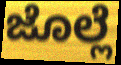
ಜೊಲ್ಲೆ